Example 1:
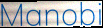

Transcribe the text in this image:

Manobi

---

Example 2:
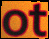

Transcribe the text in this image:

ot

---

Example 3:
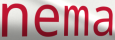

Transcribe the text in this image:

nema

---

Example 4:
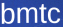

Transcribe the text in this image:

bmtc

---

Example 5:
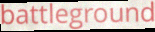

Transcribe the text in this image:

battleground